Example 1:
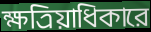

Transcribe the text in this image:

ক্ষত্রিয়াধিকারে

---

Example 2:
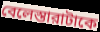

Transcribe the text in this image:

বেলেস্তারাটাকে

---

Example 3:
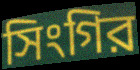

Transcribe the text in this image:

সিংগির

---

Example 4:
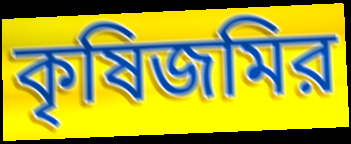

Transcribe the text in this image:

কৃষিজমির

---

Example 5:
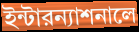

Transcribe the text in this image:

ইন্টারন্যাশনালে